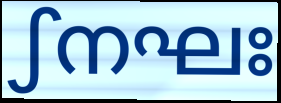
ഽനഘഃ